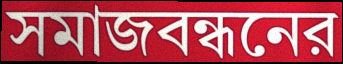
সমাজবন্ধনের